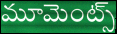
మూమెంట్స్